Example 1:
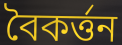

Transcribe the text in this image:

বৈকর্ত্তন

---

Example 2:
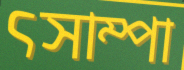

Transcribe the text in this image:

ৎসাম্পা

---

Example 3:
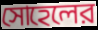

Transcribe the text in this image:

সোহেলের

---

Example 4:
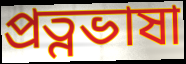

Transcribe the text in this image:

প্রত্নভাষা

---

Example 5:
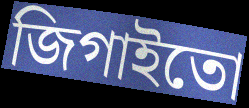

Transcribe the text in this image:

জিগাইতো